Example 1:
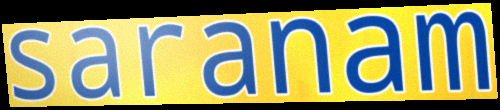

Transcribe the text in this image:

saranam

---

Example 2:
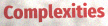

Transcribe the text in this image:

Complexities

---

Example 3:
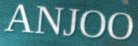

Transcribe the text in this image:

ANJOO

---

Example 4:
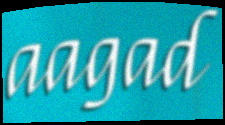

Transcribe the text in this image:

aagad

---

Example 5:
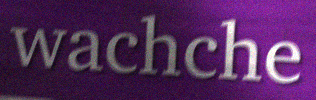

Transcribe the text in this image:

wachche